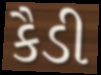
કૈડી